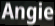
Angie